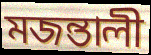
মজন্তালী